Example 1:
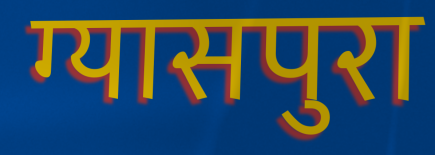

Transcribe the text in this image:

ग्यासपुरा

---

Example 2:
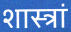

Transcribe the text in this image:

शास्त्रां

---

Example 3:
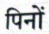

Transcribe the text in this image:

पिनों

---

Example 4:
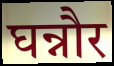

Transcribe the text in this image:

घन्नौर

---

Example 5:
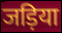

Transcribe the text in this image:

जड़िया